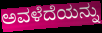
ಅವಳೆದೆಯನ್ನು